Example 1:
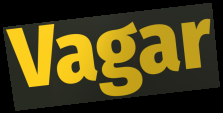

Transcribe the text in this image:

Vagar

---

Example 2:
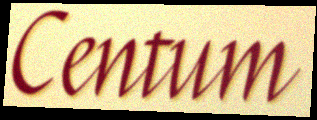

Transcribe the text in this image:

Centum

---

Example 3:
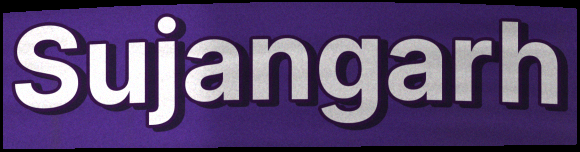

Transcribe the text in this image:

Sujangarh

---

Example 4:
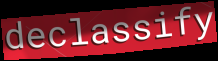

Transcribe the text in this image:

declassify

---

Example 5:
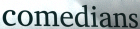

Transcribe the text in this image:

comedians